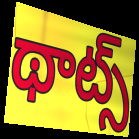
థాట్స్